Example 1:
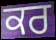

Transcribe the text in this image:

ਕਰ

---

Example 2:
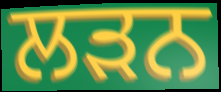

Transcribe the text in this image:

ਲਡ਼ਨ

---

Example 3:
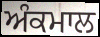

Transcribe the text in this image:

ਅੰਕਮਾਲ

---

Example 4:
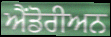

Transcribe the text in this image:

ਐਂਡੋਰੀਅਨ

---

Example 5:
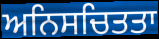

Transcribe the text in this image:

ਅਨਿਸਚਿਤਤਾ